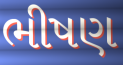
ભીષણ